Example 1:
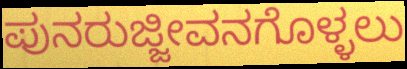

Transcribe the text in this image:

ಪುನರುಜ್ಜೀವನಗೊಳ್ಳಲು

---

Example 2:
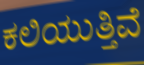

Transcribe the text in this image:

ಕಲಿಯುತ್ತಿವೆ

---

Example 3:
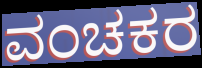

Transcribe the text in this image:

ವಂಚಕರ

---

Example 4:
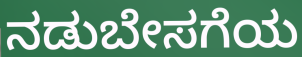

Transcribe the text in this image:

ನಡುಬೇಸಗೆಯ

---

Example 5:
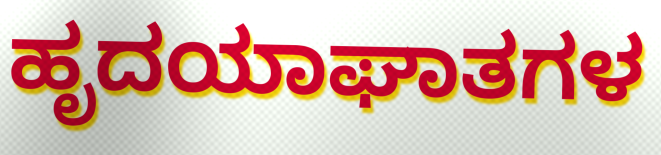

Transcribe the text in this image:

ಹೃದಯಾಘಾತಗಳ